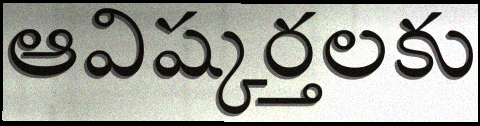
ఆవిష్కర్తలకు